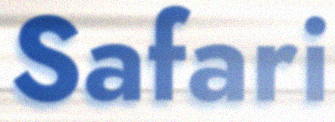
Safari